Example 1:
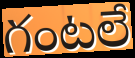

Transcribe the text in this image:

గంటలే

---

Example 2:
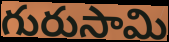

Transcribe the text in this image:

గురుసామి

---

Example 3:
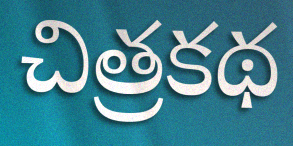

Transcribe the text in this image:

చిత్రకథ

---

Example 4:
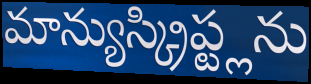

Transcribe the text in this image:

మాన్యుస్క్రిప్ట్లను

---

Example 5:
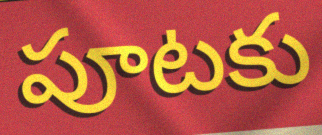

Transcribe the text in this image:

పూటకు